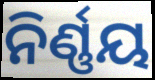
ନିର୍ଣ୍ଣୟ